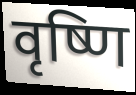
वृष्णि